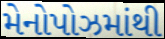
મેનોપોઝમાંથી